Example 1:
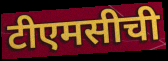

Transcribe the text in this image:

टीएमसीची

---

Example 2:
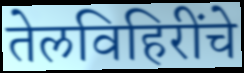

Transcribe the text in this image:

तेलविहिरींचे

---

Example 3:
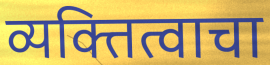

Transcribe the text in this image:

व्यक्तित्वाचा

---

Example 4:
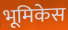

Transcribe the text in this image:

भूमिकेस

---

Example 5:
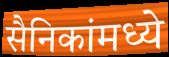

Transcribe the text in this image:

सैनिकांमध्ये